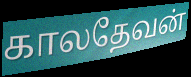
காலதேவன்